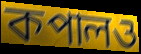
কপালও